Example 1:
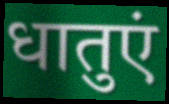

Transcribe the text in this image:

धातुएं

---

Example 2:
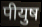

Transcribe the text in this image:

पीयुष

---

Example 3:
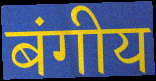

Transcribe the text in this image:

बंगीय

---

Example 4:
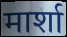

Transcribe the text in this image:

मार्शा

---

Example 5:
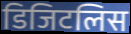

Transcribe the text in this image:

डिजिटलिस